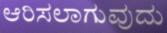
ಆರಿಸಲಾಗುವುದು